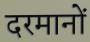
दरमानों